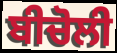
ਬੀਚੋਲੀ